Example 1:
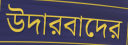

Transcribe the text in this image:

উদারবাদের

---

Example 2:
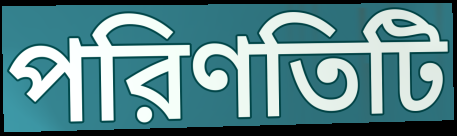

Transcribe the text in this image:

পরিণতিটি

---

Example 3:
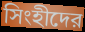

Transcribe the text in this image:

সিংহীদের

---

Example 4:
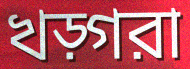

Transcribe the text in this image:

খড়্গরা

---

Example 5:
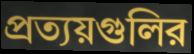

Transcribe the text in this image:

প্রত্যয়গুলির